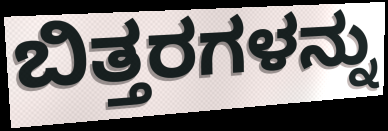
ಬಿತ್ತರಗಳನ್ನು